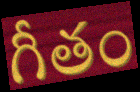
గీతం